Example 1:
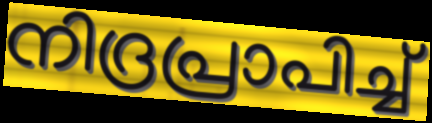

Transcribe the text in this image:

നിദ്രപ്രാപിച്ച്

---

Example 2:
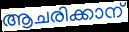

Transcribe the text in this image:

ആചരിക്കാന്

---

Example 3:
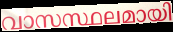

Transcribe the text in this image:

വാസസ്ഥലമായി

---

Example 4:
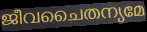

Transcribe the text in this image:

ജീവചൈതന്യമേ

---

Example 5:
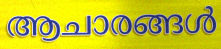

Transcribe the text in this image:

ആചാരങ്ങൾ